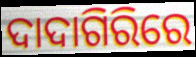
ଦାଦାଗିରିରେ